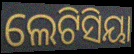
ଲେଟିସିୟା